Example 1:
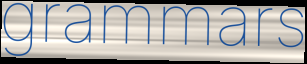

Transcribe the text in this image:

grammars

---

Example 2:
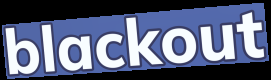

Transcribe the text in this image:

blackout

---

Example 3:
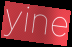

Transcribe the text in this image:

yine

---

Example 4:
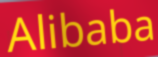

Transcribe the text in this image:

Alibaba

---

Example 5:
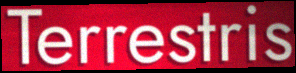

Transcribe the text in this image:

Terrestris